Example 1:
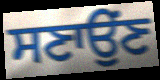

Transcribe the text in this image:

ਸਣਾਉਂਣ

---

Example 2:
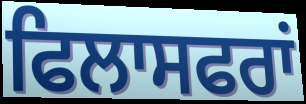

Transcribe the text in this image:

ਫਿਲਾਸਫਰਾਂ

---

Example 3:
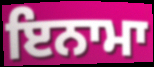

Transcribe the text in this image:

ਇਨਾਮਾ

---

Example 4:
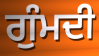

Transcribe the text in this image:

ਗੁੰਮਦੀ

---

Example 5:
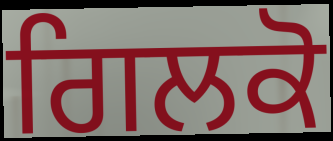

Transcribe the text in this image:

ਗਿਲਕੋ